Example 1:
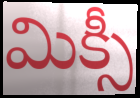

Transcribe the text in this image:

మిక్సీ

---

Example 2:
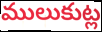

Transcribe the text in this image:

ములుకుట్ల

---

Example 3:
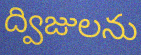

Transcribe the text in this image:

ద్విజులను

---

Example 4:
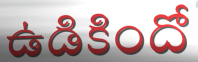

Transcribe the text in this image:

ఉడికిందో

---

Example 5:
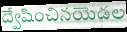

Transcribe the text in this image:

ద్వేషించినయెడల